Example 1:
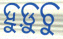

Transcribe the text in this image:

ହୁଡ଼ୁଚୁ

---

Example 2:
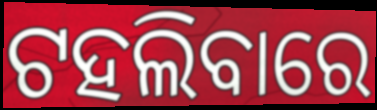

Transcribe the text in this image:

ଟହଲିବାରେ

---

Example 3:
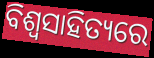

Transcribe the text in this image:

ବିଶ୍ବସାହିତ୍ୟରେ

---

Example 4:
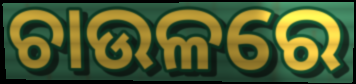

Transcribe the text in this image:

ଚାଉଳରେ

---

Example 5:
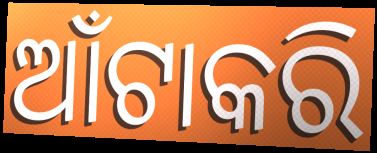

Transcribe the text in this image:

ଆଁଟାକରି